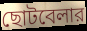
ছোটবেলার